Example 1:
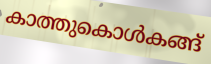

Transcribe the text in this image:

കാത്തുകൊൾകങ്ങ്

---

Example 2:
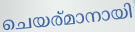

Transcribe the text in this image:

ചെയര്മാനായി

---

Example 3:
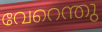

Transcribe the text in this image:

വേറെന്തു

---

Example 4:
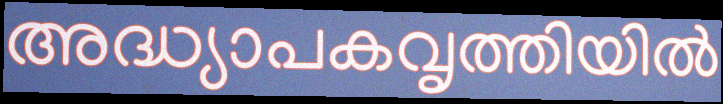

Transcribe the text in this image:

അദ്ധ്യാപകവൃത്തിയിൽ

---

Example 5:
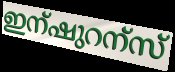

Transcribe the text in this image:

ഇന്ഷുറന്സ്